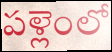
పళ్లెంలో